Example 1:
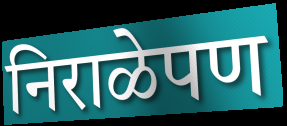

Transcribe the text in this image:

निराळेपण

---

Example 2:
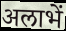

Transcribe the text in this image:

अलाभें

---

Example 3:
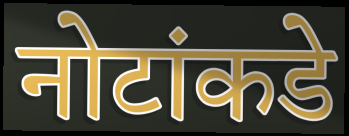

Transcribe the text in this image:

नोटांकडे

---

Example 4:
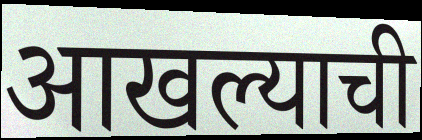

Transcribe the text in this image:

आखल्याची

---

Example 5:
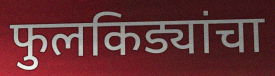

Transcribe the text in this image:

फुलकिड्यांचा